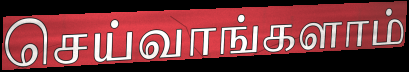
செய்வாங்களாம்